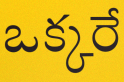
ఒక్కరే